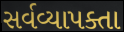
સર્વવ્યાપક્તા